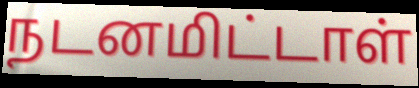
நடனமிட்டாள்